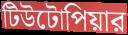
টিউটোপিয়ার